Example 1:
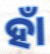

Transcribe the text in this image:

ହାଁ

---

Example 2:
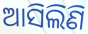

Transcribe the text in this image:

ଆସିଲିଣି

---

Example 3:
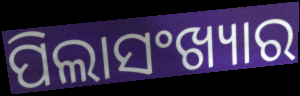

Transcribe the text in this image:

ପିଲାସଂଖ୍ୟାର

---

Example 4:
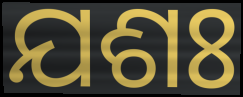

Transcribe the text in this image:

ଯଶଃ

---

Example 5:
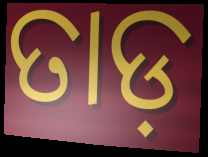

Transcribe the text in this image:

ତାଡ଼